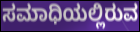
ಸಮಾಧಿಯಲ್ಲಿರುವ